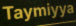
Taymiyya